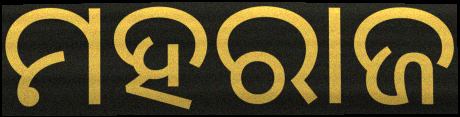
ମହରାଜ